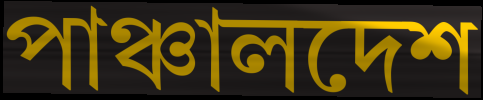
পাঞ্চালদেশ